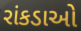
રાંકડાઓ